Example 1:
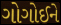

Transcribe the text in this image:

ગોગોઈને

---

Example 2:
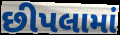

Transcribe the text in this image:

છીપલામાં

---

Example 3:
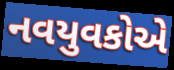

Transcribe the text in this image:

નવયુવકોએ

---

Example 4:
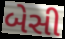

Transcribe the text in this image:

બેસી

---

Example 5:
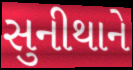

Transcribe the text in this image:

સુનીથાને